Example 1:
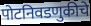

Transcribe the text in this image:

पोटनिवडणुकीचे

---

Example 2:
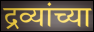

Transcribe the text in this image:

द्रव्यांच्या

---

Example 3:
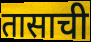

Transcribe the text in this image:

तासाची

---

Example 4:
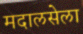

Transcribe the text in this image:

मदालसेला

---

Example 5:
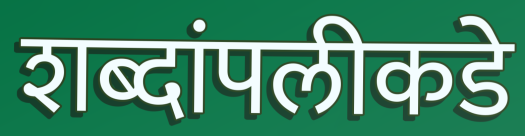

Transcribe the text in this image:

शब्दांपलीकडे